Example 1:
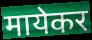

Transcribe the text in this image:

मायेकर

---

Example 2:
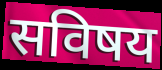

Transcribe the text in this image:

सविषय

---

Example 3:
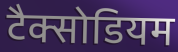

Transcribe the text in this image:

टैक्सोडियम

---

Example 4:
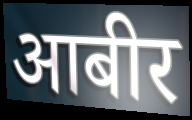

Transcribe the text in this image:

आबीर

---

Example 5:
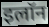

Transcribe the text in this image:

इलॉन